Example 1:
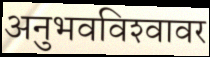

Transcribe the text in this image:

अनुभवविश्वावर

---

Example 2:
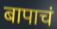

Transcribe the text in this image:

बापाचं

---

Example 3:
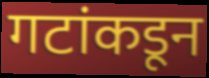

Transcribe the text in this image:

गटांकडून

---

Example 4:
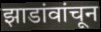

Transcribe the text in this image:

झाडांवांचून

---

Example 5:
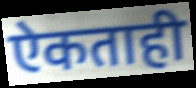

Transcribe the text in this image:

ऐकताही